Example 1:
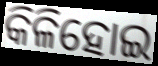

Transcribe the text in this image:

କିଳିହୋଇ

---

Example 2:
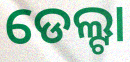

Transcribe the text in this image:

ଡେଲ୍ଟା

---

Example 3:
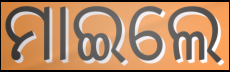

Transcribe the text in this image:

ମାଇଲେ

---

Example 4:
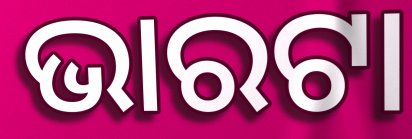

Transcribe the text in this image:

ଭାରଟା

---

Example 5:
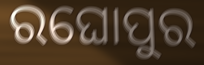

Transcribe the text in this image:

ରଘୋପୁର